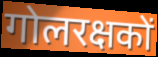
गोलरक्षकों